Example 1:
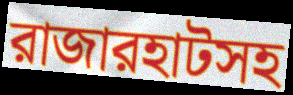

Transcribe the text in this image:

রাজারহাটসহ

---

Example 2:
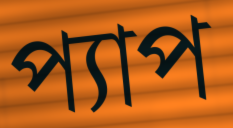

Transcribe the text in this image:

প্যাপ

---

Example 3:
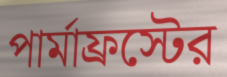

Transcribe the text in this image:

পার্মাফ্রস্টের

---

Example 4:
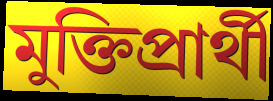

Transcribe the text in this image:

মুক্তিপ্রার্থী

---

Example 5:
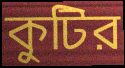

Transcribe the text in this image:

কুটির